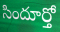
సిందూర్తో